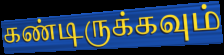
கண்டிருக்கவும்